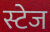
स्टेज